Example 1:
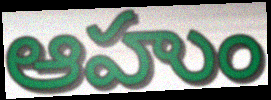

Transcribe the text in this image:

ఆహుం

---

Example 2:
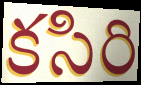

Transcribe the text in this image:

కసిరి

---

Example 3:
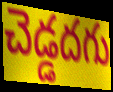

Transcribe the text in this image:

చెడ్డదగు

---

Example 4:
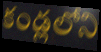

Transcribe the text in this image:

కండ్లలోని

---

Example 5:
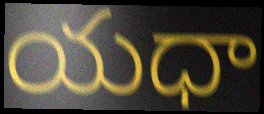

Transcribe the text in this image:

యధా